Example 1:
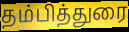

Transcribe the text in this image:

தம்பித்துரை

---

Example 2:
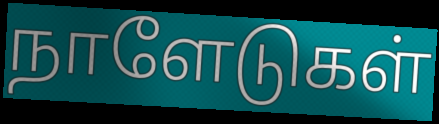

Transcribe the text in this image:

நாளேடுகள்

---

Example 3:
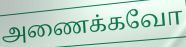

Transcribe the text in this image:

அணைக்கவோ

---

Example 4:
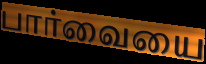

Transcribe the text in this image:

பார்வையை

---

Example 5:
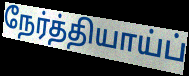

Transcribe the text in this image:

நேர்த்தியாய்ப்